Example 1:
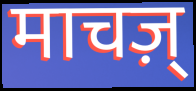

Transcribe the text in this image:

माचज़्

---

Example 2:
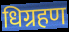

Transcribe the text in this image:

धिग्रहण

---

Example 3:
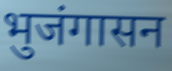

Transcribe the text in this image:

भुजंगासन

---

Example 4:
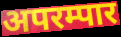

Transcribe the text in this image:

अपरम्पार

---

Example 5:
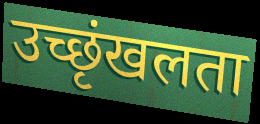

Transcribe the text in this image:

उच्छृंखलता